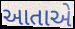
આતાએ